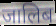
जालिब